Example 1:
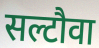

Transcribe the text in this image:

सल्टौवा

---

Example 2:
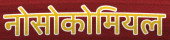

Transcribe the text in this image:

नोसोकोमियल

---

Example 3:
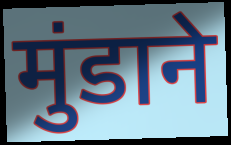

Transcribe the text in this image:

मुंडाने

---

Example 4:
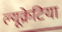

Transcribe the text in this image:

ल्यूक्रेटिया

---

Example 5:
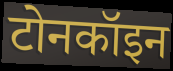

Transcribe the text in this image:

टोनकॉइन